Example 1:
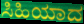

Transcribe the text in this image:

ಸಿಹಿಯಾದ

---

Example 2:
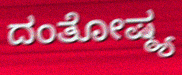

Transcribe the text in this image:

ದಂತೋಷ್ಠ್ಯ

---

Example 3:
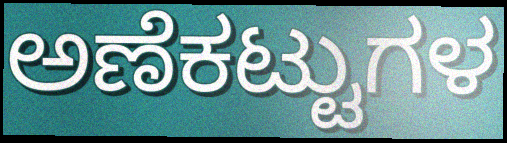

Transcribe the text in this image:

ಅಣೆಕಟ್ಟುಗಳ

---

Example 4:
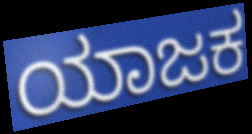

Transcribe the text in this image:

ಯಾಜಕ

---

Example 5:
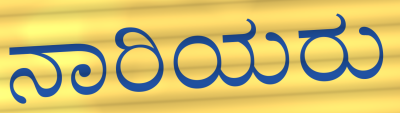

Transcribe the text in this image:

ನಾರಿಯರು